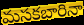
మసకబారినా